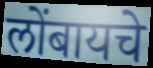
लोंबायचे